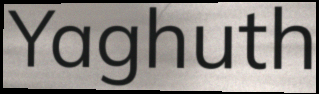
Yaghuth